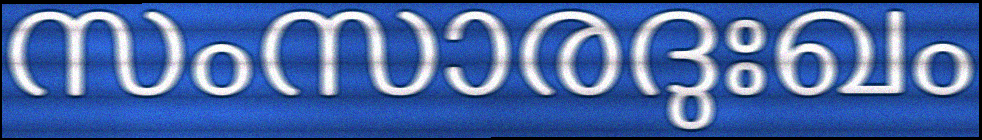
സംസാരദുഃഖം